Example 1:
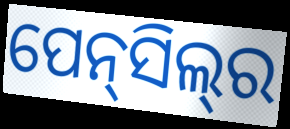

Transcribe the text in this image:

ପେନ୍‍ସିଲ୍‍ର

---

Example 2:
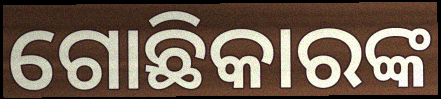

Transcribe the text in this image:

ଗୋଛିକାରଙ୍କ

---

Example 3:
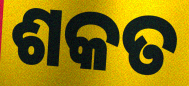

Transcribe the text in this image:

ଶକତ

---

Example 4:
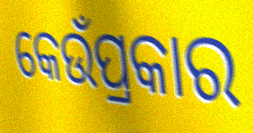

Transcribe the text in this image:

କେଉଁପ୍ରକାର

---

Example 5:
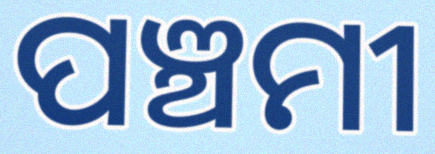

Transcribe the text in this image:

ପଞ୍ଚମୀ